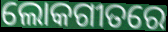
ଲୋକଗୀତରେ